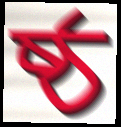
ষ্ঠ